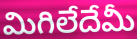
మిగిలేదేమీ